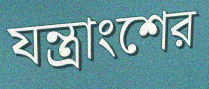
যন্ত্রাংশের